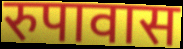
रुपावास